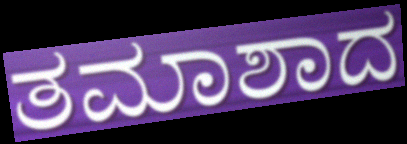
ತಮಾಶಾದ